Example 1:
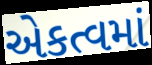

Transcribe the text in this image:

એકત્વમાં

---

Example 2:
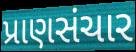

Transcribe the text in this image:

પ્રાણસંચાર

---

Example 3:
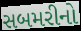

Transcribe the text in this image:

સબમરીનો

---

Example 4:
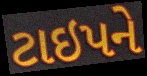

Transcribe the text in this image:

ટાઇપને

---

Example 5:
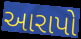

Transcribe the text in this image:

આરાપો